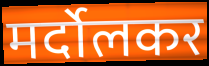
मर्दोलकर